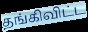
தங்கிவிட்ட